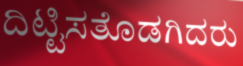
ದಿಟ್ಟಿಸತೊಡಗಿದರು